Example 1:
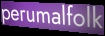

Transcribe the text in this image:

perumalfolk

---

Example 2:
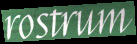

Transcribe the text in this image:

rostrum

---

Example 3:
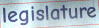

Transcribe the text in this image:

legislature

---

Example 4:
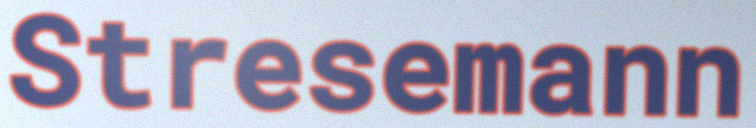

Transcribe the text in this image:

Stresemann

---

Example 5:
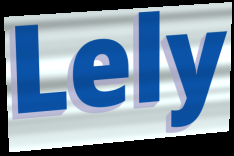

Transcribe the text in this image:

Lely